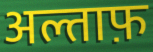
अल्ताफ़